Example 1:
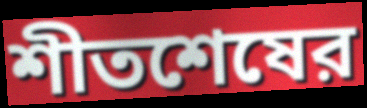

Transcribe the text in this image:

শীতশেষের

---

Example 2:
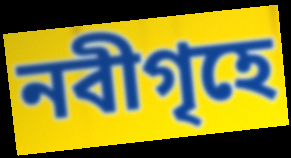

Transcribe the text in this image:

নবীগৃহে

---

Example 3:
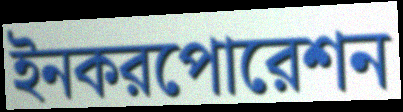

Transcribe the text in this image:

ইনকরপোরেশন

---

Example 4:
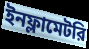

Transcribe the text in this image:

ইনফ্লামেটরি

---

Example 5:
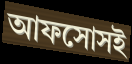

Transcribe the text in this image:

আফসোসই